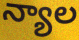
న్యాల